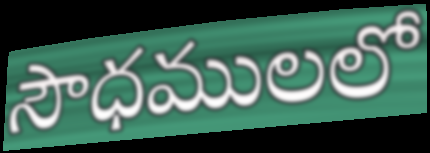
సౌధములలో